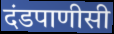
दंडपाणीसी